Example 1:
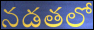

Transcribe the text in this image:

నడతలో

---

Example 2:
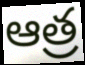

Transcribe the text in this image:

ఆత్ర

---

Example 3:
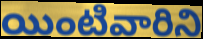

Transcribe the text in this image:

యింటివారిని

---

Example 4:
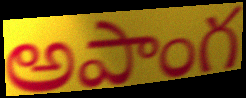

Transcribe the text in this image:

అపాంగ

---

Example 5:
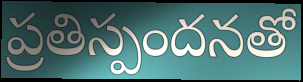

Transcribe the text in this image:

ప్రతిస్పందనతో